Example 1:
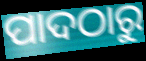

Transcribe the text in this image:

ପାଦଠାରୁ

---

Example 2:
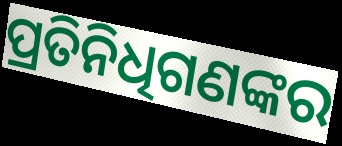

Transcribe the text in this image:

ପ୍ରତିନିଧିଗଣଙ୍କର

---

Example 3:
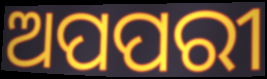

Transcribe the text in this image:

ଅପପରୀ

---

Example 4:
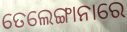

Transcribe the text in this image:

ତେଲେଙ୍ଗାନାରେ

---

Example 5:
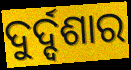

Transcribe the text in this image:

ଦୁର୍ଦ୍ଦଶାର